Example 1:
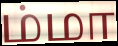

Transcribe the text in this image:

ம்மா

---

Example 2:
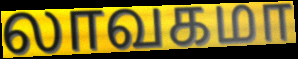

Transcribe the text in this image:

லாவகமா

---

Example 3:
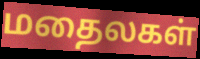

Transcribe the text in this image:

மதைலகள்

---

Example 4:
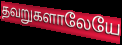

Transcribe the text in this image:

தவறுகளாலேயே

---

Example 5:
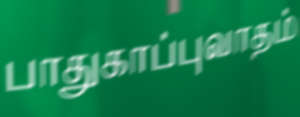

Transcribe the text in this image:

பாதுகாப்புவாதம்